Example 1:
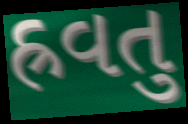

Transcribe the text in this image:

હ્રવતુ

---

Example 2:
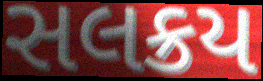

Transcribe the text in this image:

સલક્રય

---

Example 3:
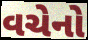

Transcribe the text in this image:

વચેનો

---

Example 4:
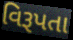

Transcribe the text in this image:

વિરૂપતા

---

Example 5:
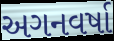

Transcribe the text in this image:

અગનવર્ષા